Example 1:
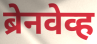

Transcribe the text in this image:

ब्रेनवेव्ह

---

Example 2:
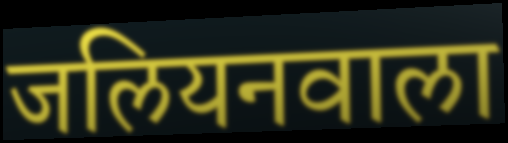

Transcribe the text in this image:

जलियनवाला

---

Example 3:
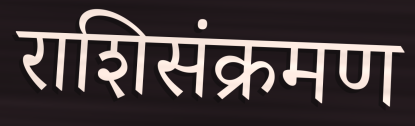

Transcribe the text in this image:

राशिसंक्रमण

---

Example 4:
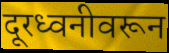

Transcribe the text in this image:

दूरध्वनीवरून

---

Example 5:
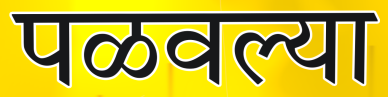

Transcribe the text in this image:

पळवल्या